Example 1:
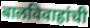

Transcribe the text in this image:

बालविवाहांची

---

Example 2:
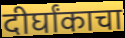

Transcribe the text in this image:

दीर्घांकाचा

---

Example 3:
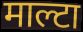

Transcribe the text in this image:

माल्टा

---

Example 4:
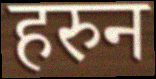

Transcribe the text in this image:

हरुन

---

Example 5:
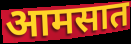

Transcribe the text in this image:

आमसात